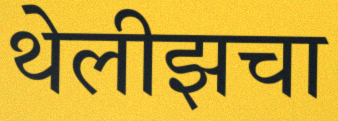
थेलीझचा